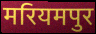
मरियमपुर